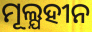
ମୂଲ୍ଯହୀନ